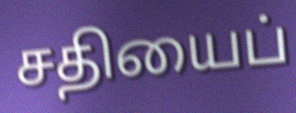
சதியைப்